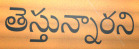
తెస్తున్నారని